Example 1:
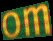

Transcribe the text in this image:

om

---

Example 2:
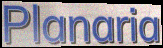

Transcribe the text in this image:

Planaria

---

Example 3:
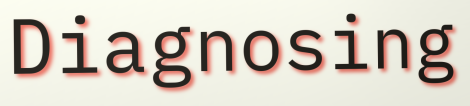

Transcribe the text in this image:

Diagnosing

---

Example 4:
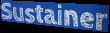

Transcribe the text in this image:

Sustainer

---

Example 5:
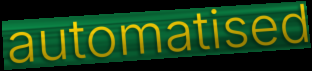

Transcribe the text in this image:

automatised